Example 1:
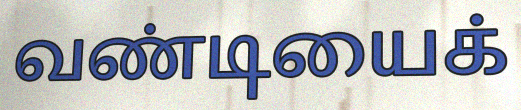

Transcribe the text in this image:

வண்டியைக்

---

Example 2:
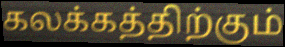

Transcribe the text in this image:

கலக்கத்திற்கும்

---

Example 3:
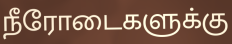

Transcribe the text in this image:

நீரோடைகளுக்கு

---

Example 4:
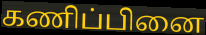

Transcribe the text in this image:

கணிப்பினை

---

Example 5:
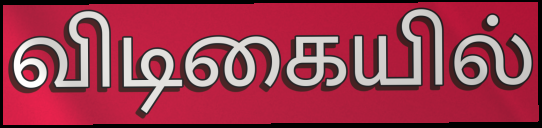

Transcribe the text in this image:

விடிகையில்